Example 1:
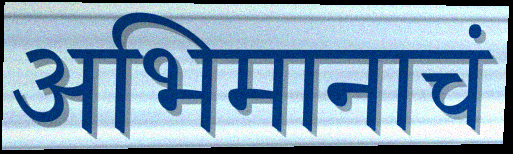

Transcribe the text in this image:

अभिमानाचं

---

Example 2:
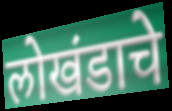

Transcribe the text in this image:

लोखंडाचे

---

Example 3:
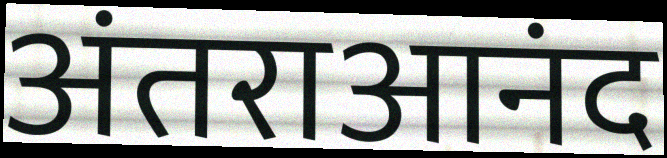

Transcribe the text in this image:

अंतराआनंद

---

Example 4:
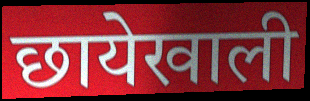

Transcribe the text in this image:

छायेखाली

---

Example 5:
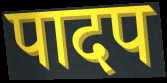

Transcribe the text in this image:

पादप